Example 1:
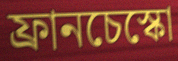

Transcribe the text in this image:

ফ্রানচেস্কো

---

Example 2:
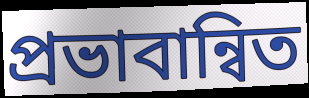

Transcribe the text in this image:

প্রভাবান্বিত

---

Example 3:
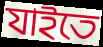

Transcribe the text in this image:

যাইতে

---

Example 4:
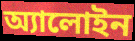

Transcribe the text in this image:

অ্যালোইন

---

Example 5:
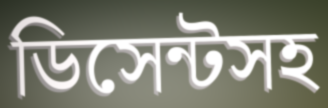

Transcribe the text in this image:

ডিসেন্টসহ